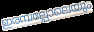
ഇരമ്പല്പോലെയും